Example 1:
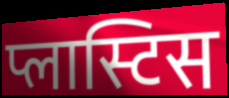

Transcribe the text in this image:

प्लास्टिस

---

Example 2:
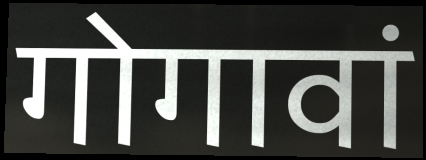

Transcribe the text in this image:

गोगावां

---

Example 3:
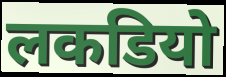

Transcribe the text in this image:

लकडियो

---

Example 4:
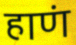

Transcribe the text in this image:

हाणं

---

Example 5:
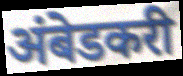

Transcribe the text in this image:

अंबेडकरी